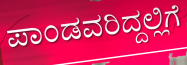
ಪಾಂಡವರಿದ್ದಲ್ಲಿಗೆ